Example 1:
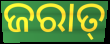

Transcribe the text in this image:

ଜରାତ୍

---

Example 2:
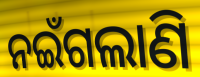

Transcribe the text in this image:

ନଇଁଗଲାଣି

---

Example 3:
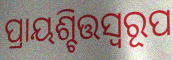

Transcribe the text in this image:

ପ୍ରାୟଶ୍ଚିତ୍ତସ୍ୱରୂପ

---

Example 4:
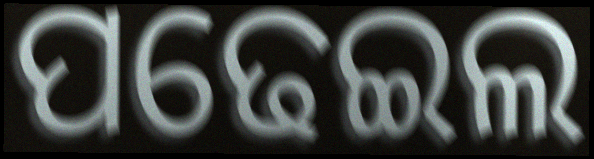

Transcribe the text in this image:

ପଢେଇଲ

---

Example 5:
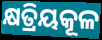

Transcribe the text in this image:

କ୍ଷତ୍ରିୟକୂଳ